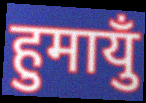
हुमायुँ